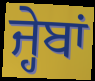
ਜ੍ਹੇਬਾਂ